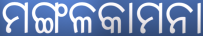
ମଙ୍ଗଳକାମନା